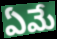
ఏమే